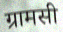
ग्रामसी